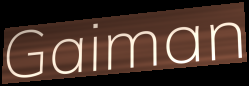
Gaiman